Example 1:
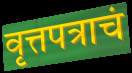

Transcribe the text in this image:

वृत्तपत्राचं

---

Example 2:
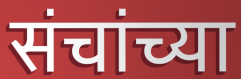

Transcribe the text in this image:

संचांच्या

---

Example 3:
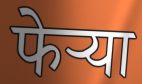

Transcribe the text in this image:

फेऱ्या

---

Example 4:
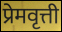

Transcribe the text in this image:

प्रेमवृत्ती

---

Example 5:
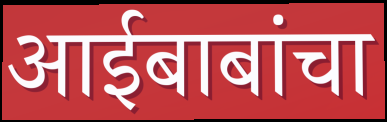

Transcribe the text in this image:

आईबाबांचा